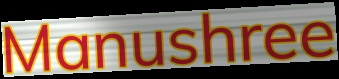
Manushree